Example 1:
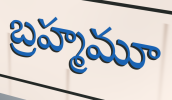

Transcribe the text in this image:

బ్రహ్మమూ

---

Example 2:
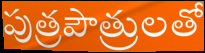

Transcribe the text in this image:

పుత్రపౌత్రులతో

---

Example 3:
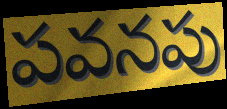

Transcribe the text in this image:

పవనపు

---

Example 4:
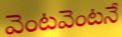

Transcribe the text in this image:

వెంటవెంటనే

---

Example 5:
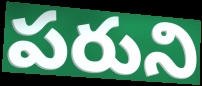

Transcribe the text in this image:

పరుని